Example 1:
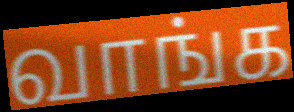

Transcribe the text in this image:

வாங்க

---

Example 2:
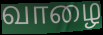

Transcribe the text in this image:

வாழை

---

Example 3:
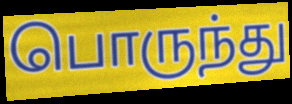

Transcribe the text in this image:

பொருந்து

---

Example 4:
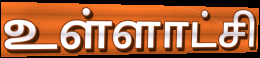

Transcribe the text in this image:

உள்ளாட்சி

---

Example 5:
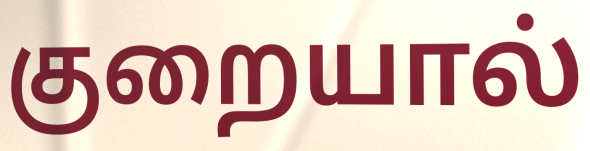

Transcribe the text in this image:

குறையால்